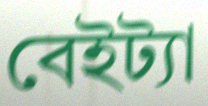
বেইট্যা